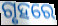
ଗୃହରେ